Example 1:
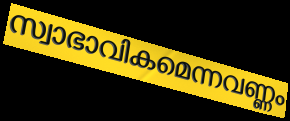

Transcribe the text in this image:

സ്വാഭാവികമെന്നവണ്ണം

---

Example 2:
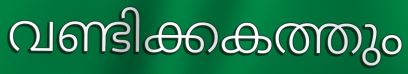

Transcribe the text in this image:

വണ്ടിക്കകത്തും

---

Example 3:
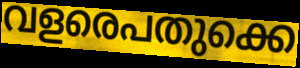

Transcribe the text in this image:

വളരെപതുക്കെ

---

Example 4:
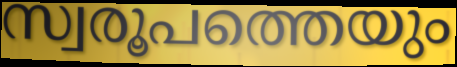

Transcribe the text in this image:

സ്വരൂപത്തെയും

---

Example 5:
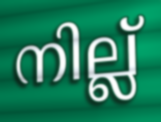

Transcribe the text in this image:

നില്ല്